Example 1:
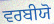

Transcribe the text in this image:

ਵਰਬੀਯੋ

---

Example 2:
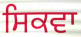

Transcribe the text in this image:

ਸਿਕਵਾ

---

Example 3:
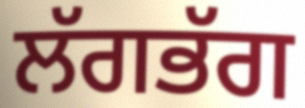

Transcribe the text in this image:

ਲੱਗਭੱਗ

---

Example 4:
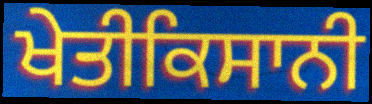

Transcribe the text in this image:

ਖੇਤੀਕਿਸਾਨੀ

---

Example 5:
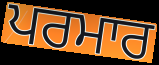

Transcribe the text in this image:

ਪਰਮਾਰ